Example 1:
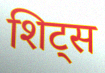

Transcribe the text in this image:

शिट्स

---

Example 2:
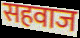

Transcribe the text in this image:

सहवाज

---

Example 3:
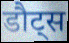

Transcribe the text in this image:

डौट्स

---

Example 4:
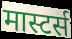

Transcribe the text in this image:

मास्टर्स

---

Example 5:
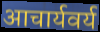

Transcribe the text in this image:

आचार्यवर्य